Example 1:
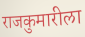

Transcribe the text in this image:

राजकुमारीला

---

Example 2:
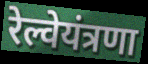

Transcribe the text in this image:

रेल्वेयंत्रणा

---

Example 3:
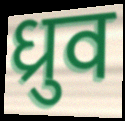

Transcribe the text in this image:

ध्रुव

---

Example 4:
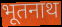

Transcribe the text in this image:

भूतनाथ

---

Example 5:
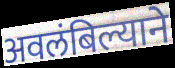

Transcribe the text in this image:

अवलंबिल्याने